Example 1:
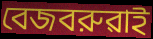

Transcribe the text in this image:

বেজবৰুৱাই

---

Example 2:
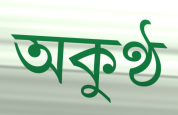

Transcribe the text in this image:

অকুণ্ঠ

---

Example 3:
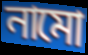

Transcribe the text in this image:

নামো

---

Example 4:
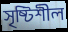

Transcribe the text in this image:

সৃষ্টিশীল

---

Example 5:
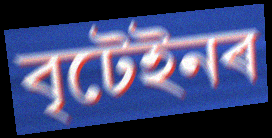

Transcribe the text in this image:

বৃটেইনৰ